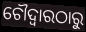
ଚୌଦ୍ୱାରଠାରୁ